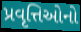
પ્રવૃત્તિઓનો